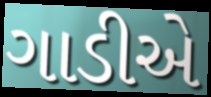
ગાડીએ